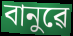
বানুৱে